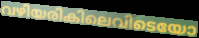
വഴിയരികിലെവിടെയോ